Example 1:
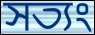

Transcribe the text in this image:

সত্যং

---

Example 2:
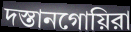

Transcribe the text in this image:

দস্তানগোয়িরা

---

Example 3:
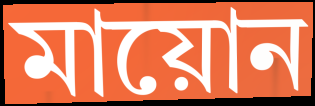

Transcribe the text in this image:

মায়োন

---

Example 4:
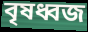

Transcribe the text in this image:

বৃষধ্বজ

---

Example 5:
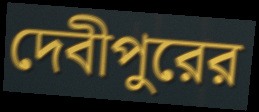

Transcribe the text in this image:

দেবীপুরের